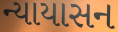
ન્યાયાસન